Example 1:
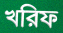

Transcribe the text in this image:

খরিফ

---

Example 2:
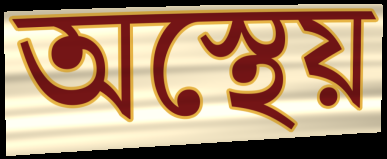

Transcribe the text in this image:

অস্থেয়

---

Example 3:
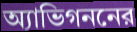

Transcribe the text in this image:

অ্যাভিগননের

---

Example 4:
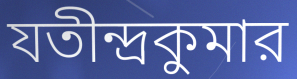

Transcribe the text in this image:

যতীন্দ্রকুমার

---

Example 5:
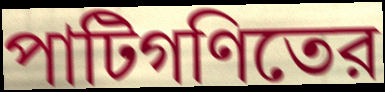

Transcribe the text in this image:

পাটিগণিতের